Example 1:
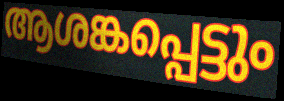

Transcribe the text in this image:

ആശങ്കപ്പെട്ടും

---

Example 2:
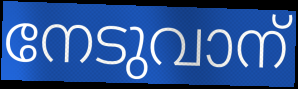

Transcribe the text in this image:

നേടുവാന്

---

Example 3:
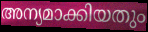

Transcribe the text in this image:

അന്യമാക്കിയതും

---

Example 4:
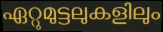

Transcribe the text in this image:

ഏറ്റുമുട്ടലുകളിലും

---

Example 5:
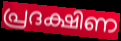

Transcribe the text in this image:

പ്രദക്ഷിണ